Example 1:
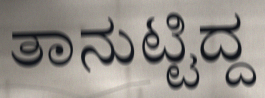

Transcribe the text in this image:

ತಾನುಟ್ಟಿದ್ದ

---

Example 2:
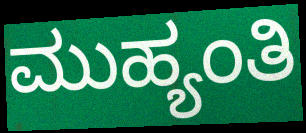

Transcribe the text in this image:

ಮುಹ್ಯಂತಿ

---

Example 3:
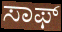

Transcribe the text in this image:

ಸಾಫ್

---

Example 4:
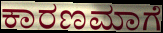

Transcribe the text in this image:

ಕಾರಣಮಾಗೆ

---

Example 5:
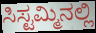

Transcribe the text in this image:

ಸಿಸ್ಟಮ್ಮಿನಲ್ಲಿ